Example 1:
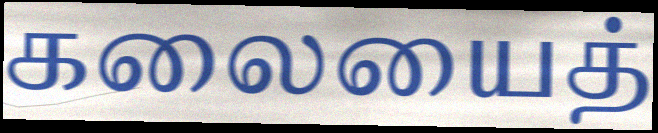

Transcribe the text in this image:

கலையைத்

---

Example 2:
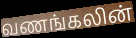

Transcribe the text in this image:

வணங்கலின்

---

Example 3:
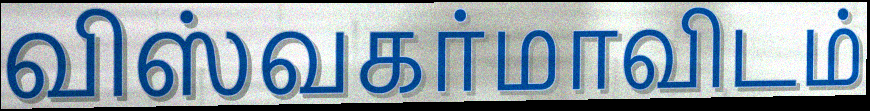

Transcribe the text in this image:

விஸ்வகர்மாவிடம்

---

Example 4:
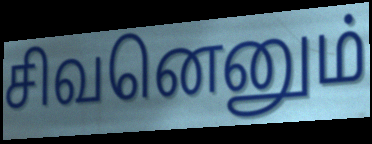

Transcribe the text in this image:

சிவனெனும்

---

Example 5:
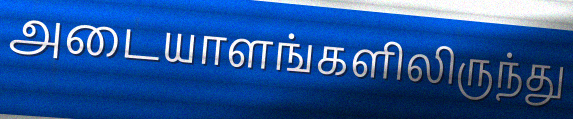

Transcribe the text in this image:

அடையாளங்களிலிருந்து